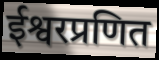
ईश्वरप्रणित